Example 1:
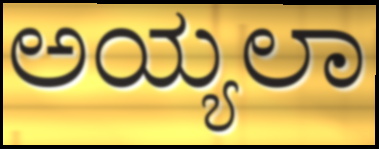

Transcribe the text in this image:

ಅಯ್ಯಲಾ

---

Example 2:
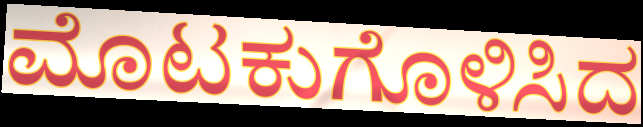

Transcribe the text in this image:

ಮೊಟಕುಗೊಳಿಸಿದ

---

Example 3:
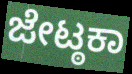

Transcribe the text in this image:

ಜೇಟ್ಠಕಾ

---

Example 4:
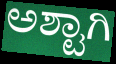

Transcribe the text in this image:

ಅಶ್ಟಾಗಿ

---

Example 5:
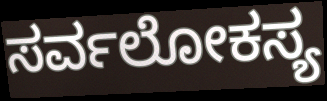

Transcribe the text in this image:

ಸರ್ವಲೋಕಸ್ಯ